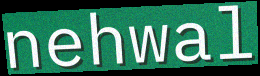
nehwal